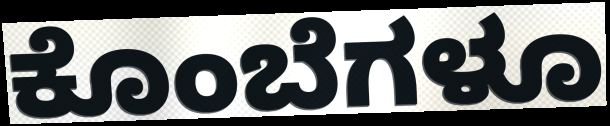
ಕೊಂಬೆಗಳೂ